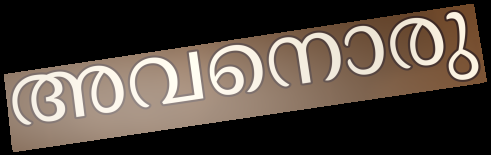
അവനൊരു